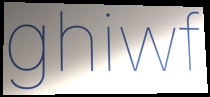
ghiwf